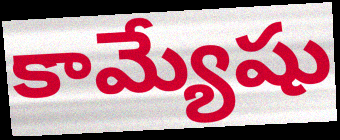
కామ్యేషు